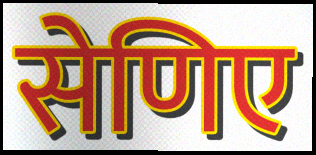
सेणिए